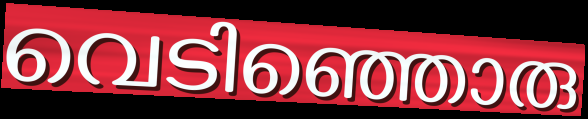
വെടിഞ്ഞൊരു